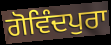
ਗੋਵਿੰਦਪੁਰਾ